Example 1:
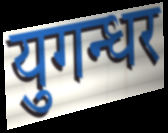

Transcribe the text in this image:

युगन्धर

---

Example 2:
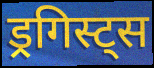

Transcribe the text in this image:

ड्रगिस्ट्स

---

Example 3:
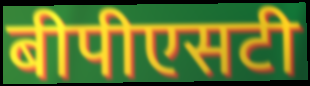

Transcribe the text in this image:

बीपीएसटी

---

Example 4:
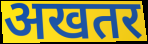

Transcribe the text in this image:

अखतर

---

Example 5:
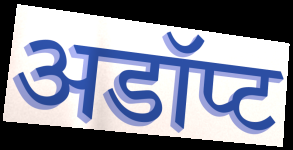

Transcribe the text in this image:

अडॉप्‍ट